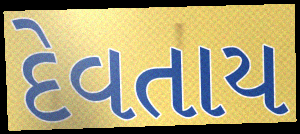
દેવતાય